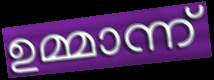
ഉമ്മാന്ന്